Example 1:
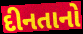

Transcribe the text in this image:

દીનતાનો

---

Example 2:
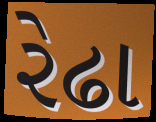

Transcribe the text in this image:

રેઢા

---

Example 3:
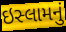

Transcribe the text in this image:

ઇસ્લામનું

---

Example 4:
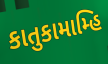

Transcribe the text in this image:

કાતુકામામ્હિ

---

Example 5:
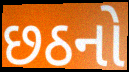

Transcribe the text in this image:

છઠનો